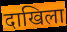
दाखिला